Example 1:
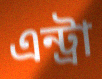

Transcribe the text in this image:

এন্ট্রা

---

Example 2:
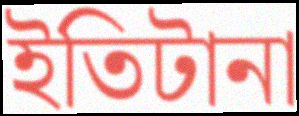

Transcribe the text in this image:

ইতিটানা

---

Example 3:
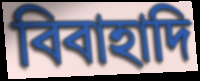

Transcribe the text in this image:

বিবাহাদি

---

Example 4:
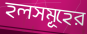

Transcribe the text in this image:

হলসমূহের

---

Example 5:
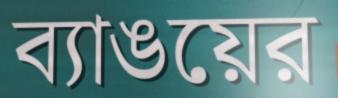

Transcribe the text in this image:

ব্যাঙয়ের